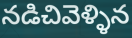
నడిచివెళ్ళిన